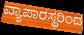
ವ್ಯಾಪಾರಸ್ಥರಿಂದ